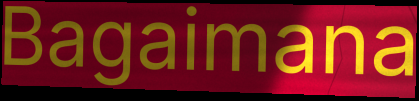
Bagaimana